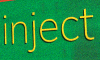
inject